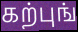
கற்புங்